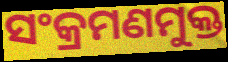
ସଂକ୍ରମଣମୁକ୍ତ